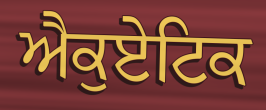
ਐਕੁਏਟਿਕ